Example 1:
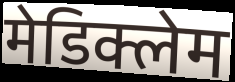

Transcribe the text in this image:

मेडिक्लेम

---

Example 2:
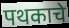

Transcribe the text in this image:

पथकाचे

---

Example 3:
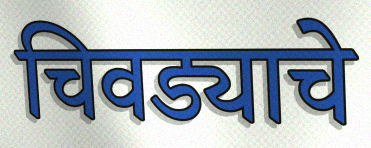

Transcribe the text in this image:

चिवड्याचे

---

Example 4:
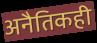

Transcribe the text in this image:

अनैतिकही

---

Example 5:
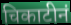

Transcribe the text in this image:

चिकाटीनं